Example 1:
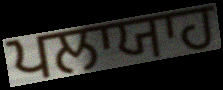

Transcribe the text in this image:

ਪਲਾਯਾਹ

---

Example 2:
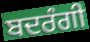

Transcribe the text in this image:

ਬਦਰੰਗੀ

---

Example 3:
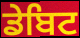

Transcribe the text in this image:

ਡੇਬਿਟ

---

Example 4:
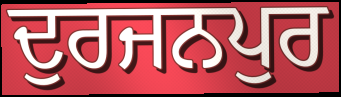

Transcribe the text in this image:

ਦੁਰਜਨਪੁਰ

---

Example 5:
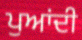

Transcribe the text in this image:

ਪੁਆਂਦੀ